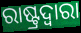
ରାଷ୍ଟ୍ରଦ୍ୱାରା